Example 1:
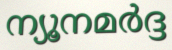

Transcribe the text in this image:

ന്യൂനമർദ്ദ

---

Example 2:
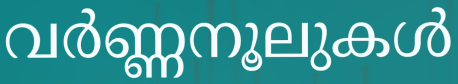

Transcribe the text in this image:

വർണ്ണനൂലുകൾ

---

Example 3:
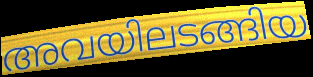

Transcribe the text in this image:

അവയിലടങ്ങിയ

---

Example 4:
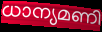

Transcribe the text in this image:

ധാന്യമണി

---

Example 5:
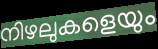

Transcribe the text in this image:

നിഴലുകളെയും